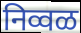
निव्वळ